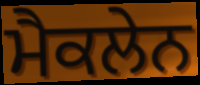
ਮੈਕਲੇਨ